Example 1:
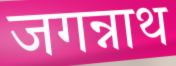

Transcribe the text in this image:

जगन्नाथ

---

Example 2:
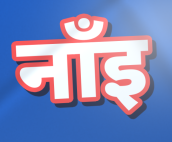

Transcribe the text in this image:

नाँइ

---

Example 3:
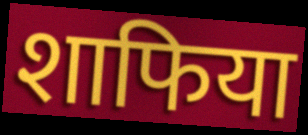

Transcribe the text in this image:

शाफिया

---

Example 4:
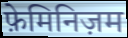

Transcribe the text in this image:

फ़ेमिनिज़म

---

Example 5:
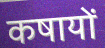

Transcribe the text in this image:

कषायों